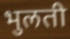
भुलती